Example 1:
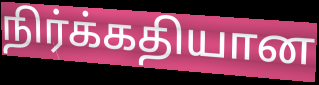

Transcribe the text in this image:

நிர்க்கதியான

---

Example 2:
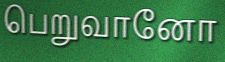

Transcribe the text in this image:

பெறுவானோ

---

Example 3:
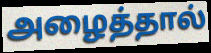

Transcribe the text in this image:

அழைத்தால்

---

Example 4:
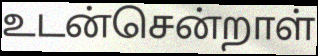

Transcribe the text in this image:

உடன்சென்றாள்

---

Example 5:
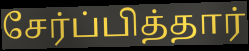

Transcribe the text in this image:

சேர்ப்பித்தார்